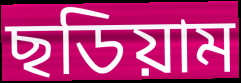
ছডিয়াম